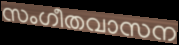
സംഗീതവാസന